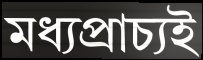
মধ্যপ্রাচ্যই